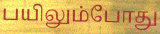
பயிலும்போது